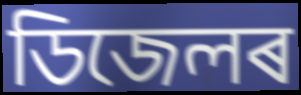
ডিজেলৰ